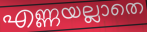
എണ്ണയല്ലാതെ